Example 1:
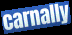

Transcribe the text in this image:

carnally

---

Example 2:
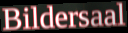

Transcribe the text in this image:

Bildersaal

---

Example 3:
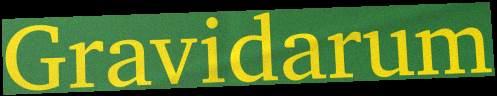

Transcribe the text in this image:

Gravidarum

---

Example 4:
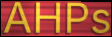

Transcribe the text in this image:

AHPs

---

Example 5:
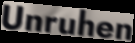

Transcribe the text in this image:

Unruhen